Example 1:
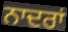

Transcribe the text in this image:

ਨਾਦਰਾਂ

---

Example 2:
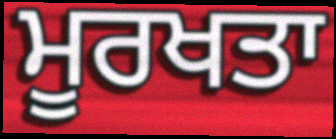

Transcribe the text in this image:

ਮੂਰਖਤਾ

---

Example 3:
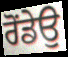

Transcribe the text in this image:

ਰੋਂਡੇਉ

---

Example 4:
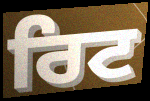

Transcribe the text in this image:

ਰਿਟ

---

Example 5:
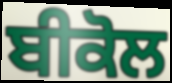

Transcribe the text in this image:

ਬੀਕੋਲ